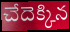
చేదెక్కిన